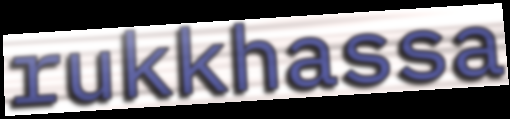
rukkhassa